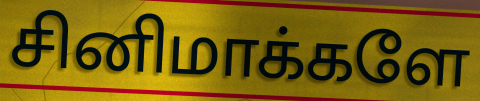
சினிமாக்களே